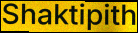
Shaktipith